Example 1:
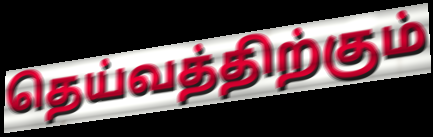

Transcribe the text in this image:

தெய்வத்திற்கும்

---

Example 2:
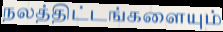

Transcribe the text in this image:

நலத்திட்டங்களையும்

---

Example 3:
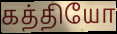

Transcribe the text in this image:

கத்தியோ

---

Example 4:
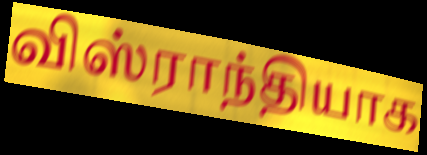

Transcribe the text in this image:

விஸ்ராந்தியாக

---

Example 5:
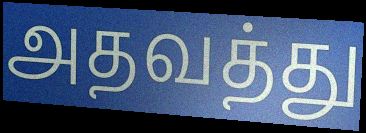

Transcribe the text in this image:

அதவத்து